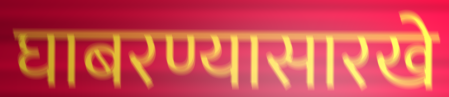
घाबरण्यासारखे